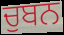
ਚੁਬਨ